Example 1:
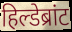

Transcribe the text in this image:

हिल्डेब्रांट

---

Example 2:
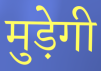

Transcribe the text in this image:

मुड़ेगी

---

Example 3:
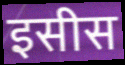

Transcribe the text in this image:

इसीस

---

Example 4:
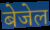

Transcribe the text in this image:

बेजेल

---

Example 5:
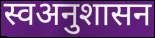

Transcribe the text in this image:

स्वअनुशासन